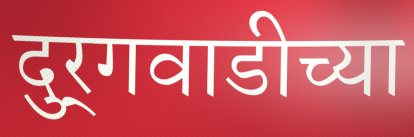
दुर्गवाडीच्या